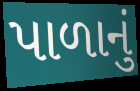
પાળાનું